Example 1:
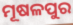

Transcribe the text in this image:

ମୂଷଳପୁର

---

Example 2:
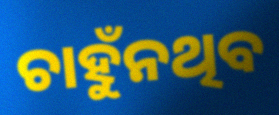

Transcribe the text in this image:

ଚାହୁଁନଥିବ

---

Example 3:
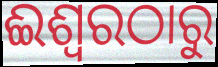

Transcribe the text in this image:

ଈଶ୍ୱରଠାରୁ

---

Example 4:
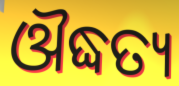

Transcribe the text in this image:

ଔଦ୍ଧତ୍ୟ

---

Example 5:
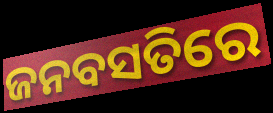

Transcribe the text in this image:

ଜନବସତିରେ